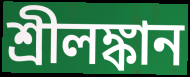
শ্রীলঙ্কান